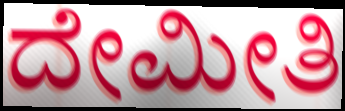
ದೇಮೀತಿ